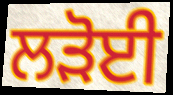
ਲੜੋਈ